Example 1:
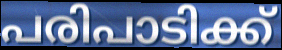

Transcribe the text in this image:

പരിപാടിക്ക്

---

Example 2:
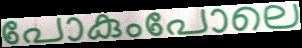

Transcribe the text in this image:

പോകുംപോലെ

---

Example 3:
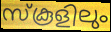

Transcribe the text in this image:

സ്കൂളിലും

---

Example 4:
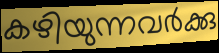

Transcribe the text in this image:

കഴിയുന്നവർക്കു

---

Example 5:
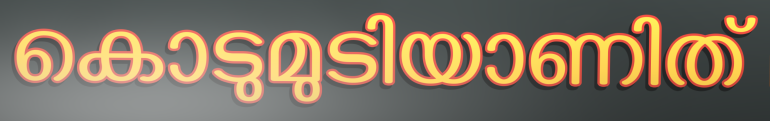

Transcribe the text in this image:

കൊടുമുടിയാണിത്